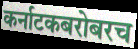
कर्नाटकबरोबरच